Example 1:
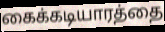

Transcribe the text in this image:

கைக்கடியாரத்தை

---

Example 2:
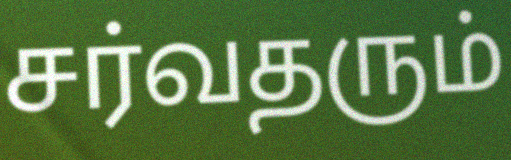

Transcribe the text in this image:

சர்வதரும்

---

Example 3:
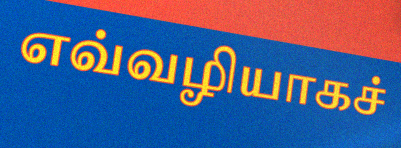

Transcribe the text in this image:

எவ்வழியாகச்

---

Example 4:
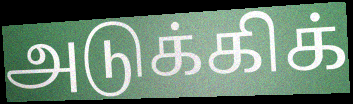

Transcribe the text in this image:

அடுக்கிக்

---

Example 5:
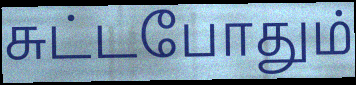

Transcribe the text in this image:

சுட்டபோதும்